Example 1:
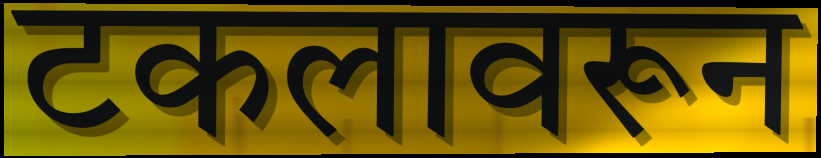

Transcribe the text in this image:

टकलावरून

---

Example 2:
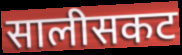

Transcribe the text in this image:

सालीसकट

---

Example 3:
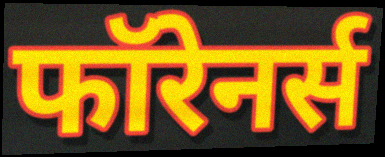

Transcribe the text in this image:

फॉरेनर्स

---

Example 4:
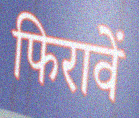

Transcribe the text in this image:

फिरावें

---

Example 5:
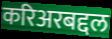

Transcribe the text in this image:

करिअरबद्दल